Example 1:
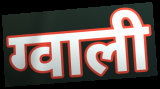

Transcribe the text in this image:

ग्वाली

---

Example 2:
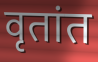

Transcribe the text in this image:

वृतांत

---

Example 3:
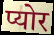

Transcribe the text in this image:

प्योर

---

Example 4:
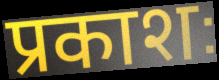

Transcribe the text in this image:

प्रकाशः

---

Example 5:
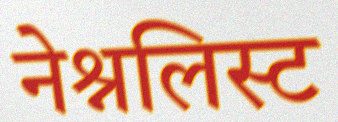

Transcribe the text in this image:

नेश्नलिस्ट